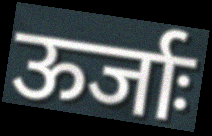
ऊर्जाः